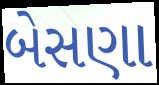
બેસણા